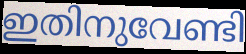
ഇതിനുവേണ്ടി